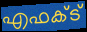
എഫക്ട്